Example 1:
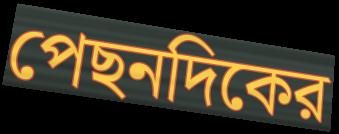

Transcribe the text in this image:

পেছনদিকের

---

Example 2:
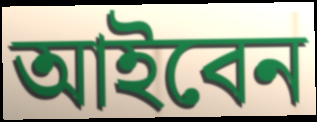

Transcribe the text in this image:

আইবেন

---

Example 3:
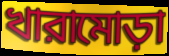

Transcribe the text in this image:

খারামোড়া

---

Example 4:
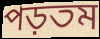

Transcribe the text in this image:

পড়তম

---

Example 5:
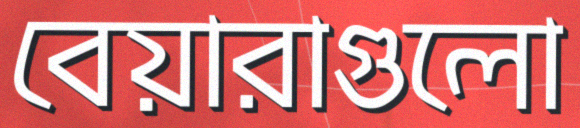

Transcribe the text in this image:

বেয়ারাগুলো